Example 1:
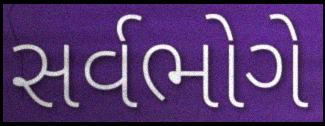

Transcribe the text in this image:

સર્વભોગે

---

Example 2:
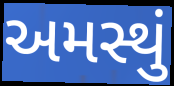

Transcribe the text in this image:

અમસ્થું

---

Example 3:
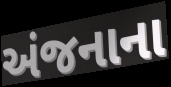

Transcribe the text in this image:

અંજનાના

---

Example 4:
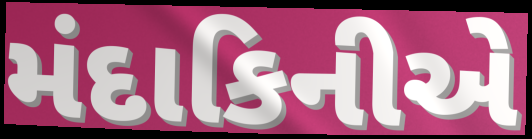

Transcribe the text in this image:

મંદાકિનીએ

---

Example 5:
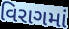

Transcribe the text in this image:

વિરાગમાં